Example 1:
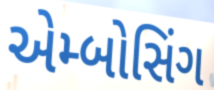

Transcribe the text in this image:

એમ્બોસિંગ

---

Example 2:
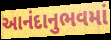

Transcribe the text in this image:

આનંદાનુભવમાં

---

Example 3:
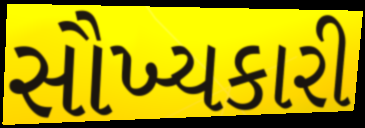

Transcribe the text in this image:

સૌખ્યકારી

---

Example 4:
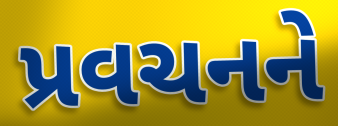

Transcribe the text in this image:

પ્રવચનને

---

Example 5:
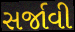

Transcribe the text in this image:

સર્જાવી